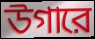
উগারে